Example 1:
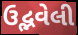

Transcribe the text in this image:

ઉદ્ભવેલી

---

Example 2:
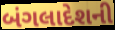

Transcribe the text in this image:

બંગલાદેશની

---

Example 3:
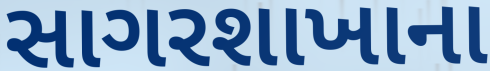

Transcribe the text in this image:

સાગરશાખાના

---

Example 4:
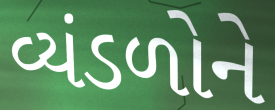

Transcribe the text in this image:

વ્યંડળોને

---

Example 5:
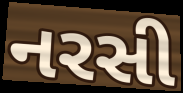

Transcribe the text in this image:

નરસી